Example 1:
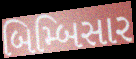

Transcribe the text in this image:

બિમ્બિસાર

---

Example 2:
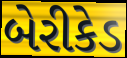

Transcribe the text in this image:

બેરીકેડ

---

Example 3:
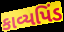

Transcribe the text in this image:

કાવ્યપિંડ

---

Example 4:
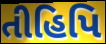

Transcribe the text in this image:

તીહિપિ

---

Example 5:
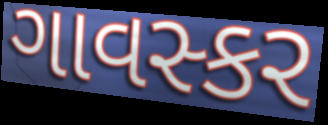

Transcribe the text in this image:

ગાવસ્કર